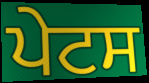
ਪੇਟਸ